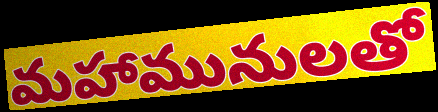
మహామునులతో